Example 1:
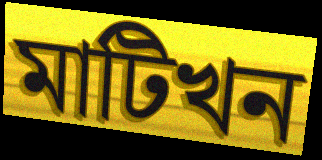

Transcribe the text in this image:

মাটিখন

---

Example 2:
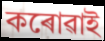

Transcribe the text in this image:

কৰোৱাই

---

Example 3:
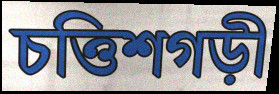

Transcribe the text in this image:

চত্তিশগড়ী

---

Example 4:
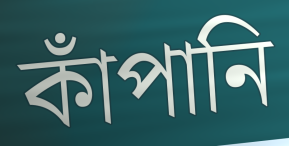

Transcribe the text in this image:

কাঁপানি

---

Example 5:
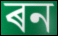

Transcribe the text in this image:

ৰন